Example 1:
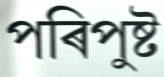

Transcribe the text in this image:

পৰিপুষ্ট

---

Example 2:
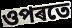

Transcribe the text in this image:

ওপৰতে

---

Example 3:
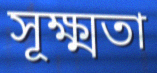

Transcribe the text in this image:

সূক্ষ্মতা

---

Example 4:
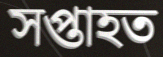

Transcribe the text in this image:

সপ্তাহত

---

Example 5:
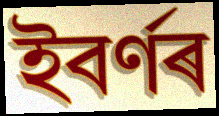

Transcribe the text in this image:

ইবৰ্ণৰ